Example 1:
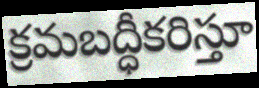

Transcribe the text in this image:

క్రమబద్ధీకరిస్తూ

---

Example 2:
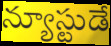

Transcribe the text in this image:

న్యూస్టుడే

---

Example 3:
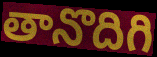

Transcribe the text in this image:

తానొదిగి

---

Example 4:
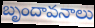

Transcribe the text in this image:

బృందావనాలు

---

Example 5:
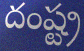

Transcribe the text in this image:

దంష్ట్ర